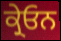
ਕ੍ਰੇਓਨ